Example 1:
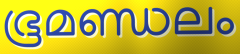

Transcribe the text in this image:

ഭൂമണ്ഡലം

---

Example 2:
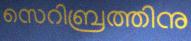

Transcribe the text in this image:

സെറിബ്രത്തിനു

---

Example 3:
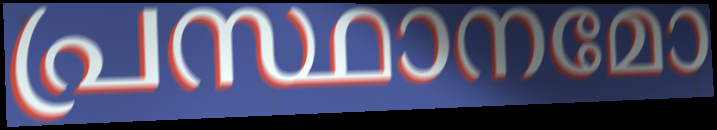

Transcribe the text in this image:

പ്രസ്ഥാനമോ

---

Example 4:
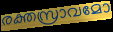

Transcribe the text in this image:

രക്തസ്രാവമോ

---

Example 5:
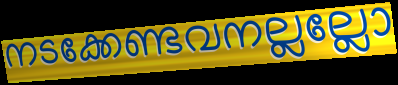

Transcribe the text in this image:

നടക്കേണ്ടവനല്ലല്ലോ